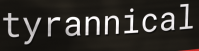
tyrannical